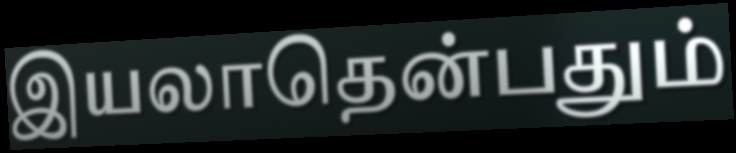
இயலாதென்பதும்